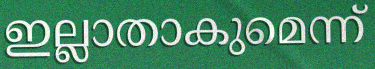
ഇല്ലാതാകുമെന്ന്